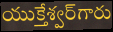
యుక్తేశ్వర్‌గారు